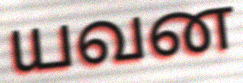
யவன